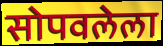
सोपवलेला